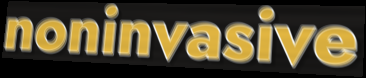
noninvasive